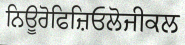
ਨਿਊਰੋਫਿਜ਼ਿਓਲੋਜੀਕਲ